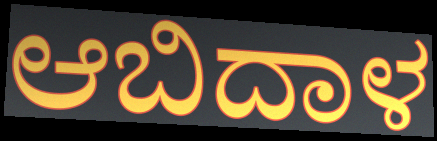
ಆಬಿದಾಳ